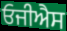
ਓਜੀਐਸ